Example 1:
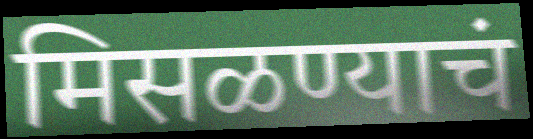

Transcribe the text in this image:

मिसळण्याचं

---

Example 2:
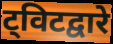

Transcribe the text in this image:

ट्विटद्वारे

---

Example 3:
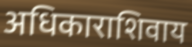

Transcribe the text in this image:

अधिकाराशिवाय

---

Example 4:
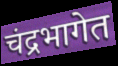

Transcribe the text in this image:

चंद्रभागेत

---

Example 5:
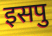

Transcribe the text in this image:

इसपु